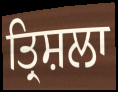
ਤ੍ਰਿਸ਼ਲਾ